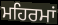
ਮਹਿਰਮਾਂ